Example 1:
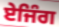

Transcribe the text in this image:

ਏਜਿੰਗ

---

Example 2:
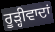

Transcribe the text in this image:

ਰੂੜ੍ਹੀਵਾਦਾਂ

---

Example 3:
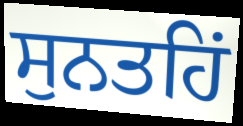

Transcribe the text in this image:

ਸੁਨਤਹਿਂ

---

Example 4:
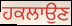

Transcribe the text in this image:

ਹਕਲਾਉਣ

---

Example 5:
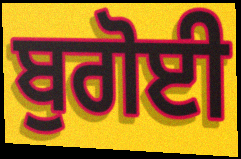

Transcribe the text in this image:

ਬੁਗੋਈ